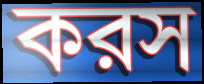
করস